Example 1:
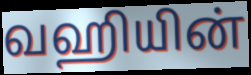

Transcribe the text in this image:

வஹியின்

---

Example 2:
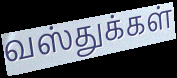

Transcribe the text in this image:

வஸ்துக்கள்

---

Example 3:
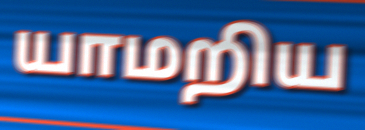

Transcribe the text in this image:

யாமறிய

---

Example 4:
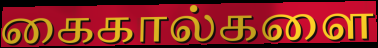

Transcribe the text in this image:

கைகால்களை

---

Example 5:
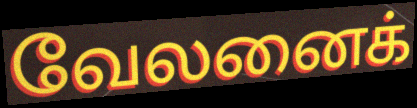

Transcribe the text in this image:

வேலனைக்